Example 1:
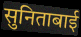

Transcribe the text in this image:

सुनिताबाई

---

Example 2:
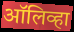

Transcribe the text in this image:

ऑलिव्हा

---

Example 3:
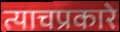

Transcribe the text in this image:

त्याचप्रकारे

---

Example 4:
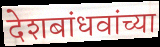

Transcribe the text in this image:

देशबांधवांच्या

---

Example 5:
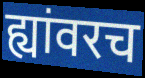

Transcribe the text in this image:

ह्यांवरच